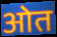
ओत